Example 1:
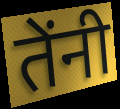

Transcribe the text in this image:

तेंनी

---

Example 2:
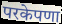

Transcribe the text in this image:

परकेपणा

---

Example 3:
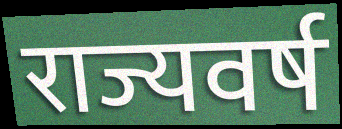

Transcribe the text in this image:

राज्यवर्ष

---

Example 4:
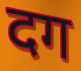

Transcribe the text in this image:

दग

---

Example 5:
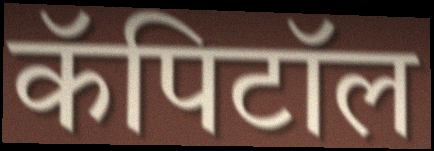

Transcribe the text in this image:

कॅपिटॉल